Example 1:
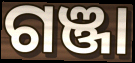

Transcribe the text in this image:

ଗଞ୍ଜା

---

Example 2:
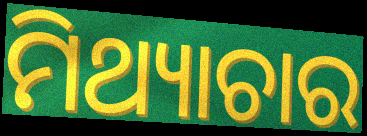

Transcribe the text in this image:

ମିଥ୍ୟାଚାର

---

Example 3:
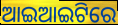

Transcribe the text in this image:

ଆଇଆଇଟିରେ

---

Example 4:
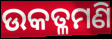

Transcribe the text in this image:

ଉକତ୍ଳମଣି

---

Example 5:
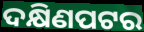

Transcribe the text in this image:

ଦକ୍ଷିଣପଟର